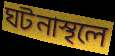
ঘটনাস্থলে